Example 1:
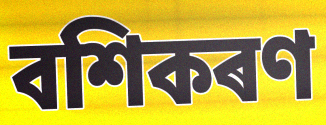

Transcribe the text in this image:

বশিকৰণ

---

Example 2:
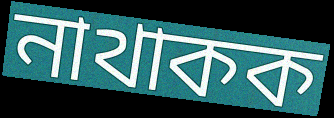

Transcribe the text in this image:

নাথাকক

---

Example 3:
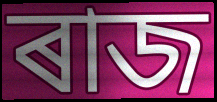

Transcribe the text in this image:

ৰাজ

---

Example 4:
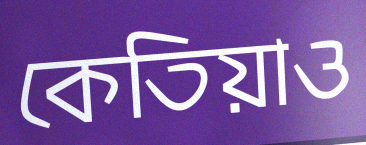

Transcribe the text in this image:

কেতিয়াও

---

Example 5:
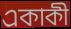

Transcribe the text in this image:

একাকী